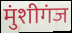
मुंशीगंज